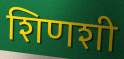
शिणशी